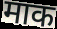
माक